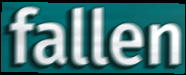
fallen